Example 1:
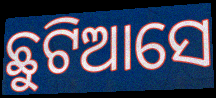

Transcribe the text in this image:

ଛୁଟିଆସେ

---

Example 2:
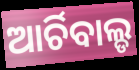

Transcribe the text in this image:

ଆର୍ଚିବାଲ୍ଡ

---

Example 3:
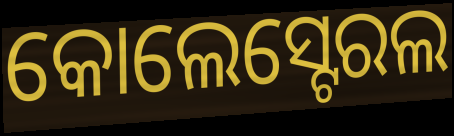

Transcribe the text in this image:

କୋଲେସ୍ଟେରଲ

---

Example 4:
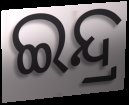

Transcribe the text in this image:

ଇନ୍ଦ୍ର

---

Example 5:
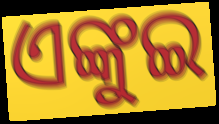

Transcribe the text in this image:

ଏଙ୍କୁଇ